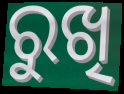
ରୁଖି